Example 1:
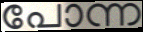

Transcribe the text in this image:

പോന്ന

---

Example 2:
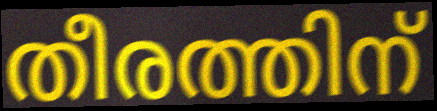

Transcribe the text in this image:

തീരത്തിന്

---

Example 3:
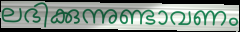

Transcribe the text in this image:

ലഭിക്കുന്നുണ്ടാവണം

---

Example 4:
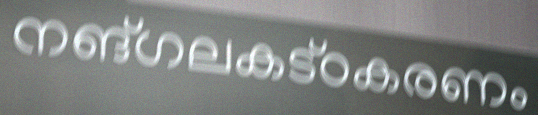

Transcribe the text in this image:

നങ്ഗലകട്ഠകരണം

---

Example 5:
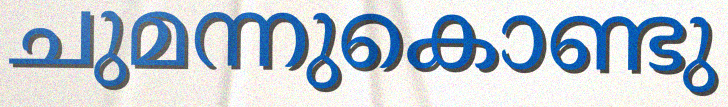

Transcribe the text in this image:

ചുമന്നുകൊണ്ടു